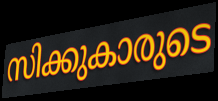
സിക്കുകാരുടെ